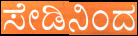
ಸೇಡಿನಿಂದ